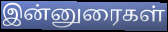
இன்னுரைகள்